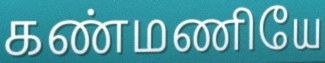
கண்மணியே